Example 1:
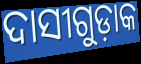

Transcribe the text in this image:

ଦାସୀଗୁଡ଼ାକ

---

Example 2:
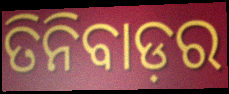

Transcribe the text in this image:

ତିନିବାଡ଼ର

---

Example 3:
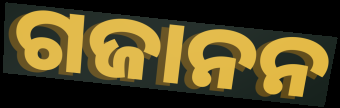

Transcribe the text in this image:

ଗଜାନନ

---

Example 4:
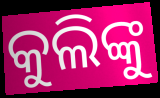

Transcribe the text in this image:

କୁଲିଙ୍କୁ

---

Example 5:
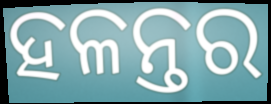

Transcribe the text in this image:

ହଳନ୍ତର